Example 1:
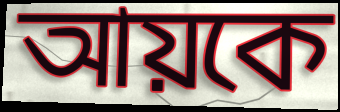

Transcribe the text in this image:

আয়কে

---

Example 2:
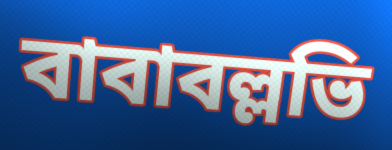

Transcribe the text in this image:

বাবাবল্লভি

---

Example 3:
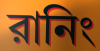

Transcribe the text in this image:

রানিং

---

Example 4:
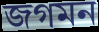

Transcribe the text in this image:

জগমন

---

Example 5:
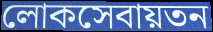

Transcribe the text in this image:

লোকসেবায়তন